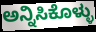
ಅನ್ನಿಸಿಕೊಳ್ಳು